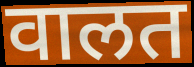
वालत